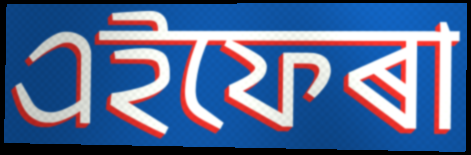
এইফেৰা